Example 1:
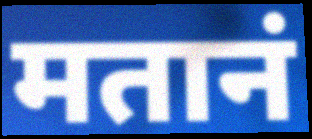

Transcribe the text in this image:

मतानं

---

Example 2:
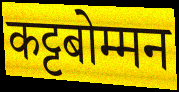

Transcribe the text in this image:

कट्टबोम्मन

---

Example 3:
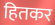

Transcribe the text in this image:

हितकर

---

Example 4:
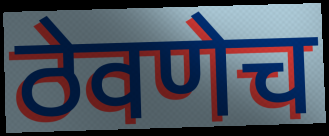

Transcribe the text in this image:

ठेवणेच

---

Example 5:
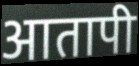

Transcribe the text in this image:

आतापी